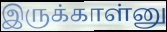
இருக்காள்னு